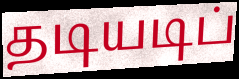
தடியடிப்